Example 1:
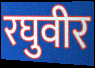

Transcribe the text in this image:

रघुवीर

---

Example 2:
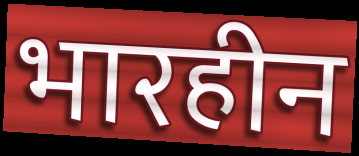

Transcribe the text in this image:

भारहीन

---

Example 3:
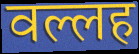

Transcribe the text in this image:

वल्लह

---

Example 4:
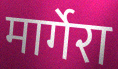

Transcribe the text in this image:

मार्गेरा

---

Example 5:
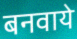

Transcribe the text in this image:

बनवाये